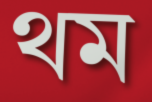
থম